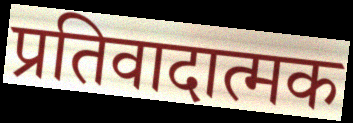
प्रतिवादात्मक